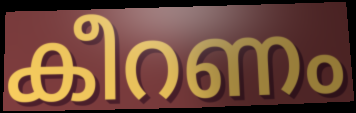
കീറണം